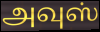
அவுஸ்